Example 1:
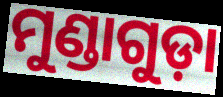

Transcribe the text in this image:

ମୁଣ୍ଡାଗୁଡ଼ା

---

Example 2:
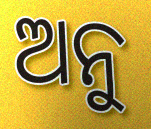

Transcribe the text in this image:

ଅନୁ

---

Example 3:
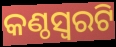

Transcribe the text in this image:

କଣ୍ଠସ୍ଵରଟି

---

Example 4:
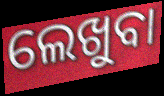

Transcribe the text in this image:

ଲେଖୁବା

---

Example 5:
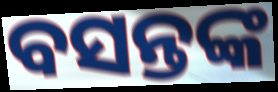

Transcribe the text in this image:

ବସନ୍ତଙ୍କ